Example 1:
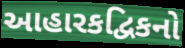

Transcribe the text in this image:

આહારકદ્વિકનો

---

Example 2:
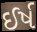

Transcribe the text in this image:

ઈર્ષ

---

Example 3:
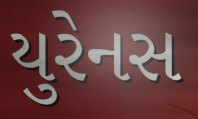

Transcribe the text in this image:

યુરેનસ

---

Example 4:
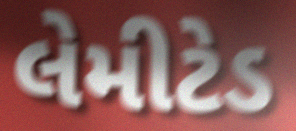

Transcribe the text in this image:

લેમીટેડ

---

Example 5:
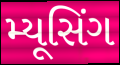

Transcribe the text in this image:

મ્યૂસિંગ